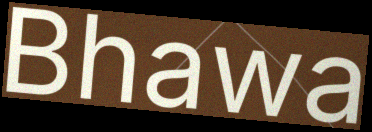
Bhawa